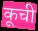
कूची